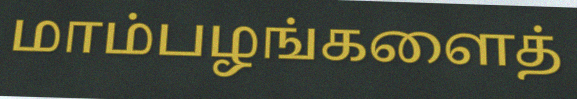
மாம்பழங்களைத்